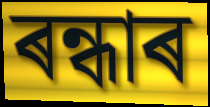
ৰন্ধাৰ